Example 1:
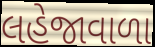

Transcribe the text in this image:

લહેજાવાળા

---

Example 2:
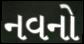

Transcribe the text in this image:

નવનો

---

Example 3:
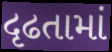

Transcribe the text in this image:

દૃઢતામાં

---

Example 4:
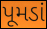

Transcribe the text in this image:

પૂમડાં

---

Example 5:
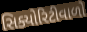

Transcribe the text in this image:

સિક્યોરિટીવાળો